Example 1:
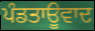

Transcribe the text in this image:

ਪੰਡਤਾਊਵਾਦ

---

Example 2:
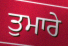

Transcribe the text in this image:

ਤੁਮਾਰੇ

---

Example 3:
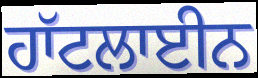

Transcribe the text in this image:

ਹਾੱਟਲਾਈਨ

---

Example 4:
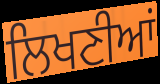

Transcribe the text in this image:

ਲਿਖਣੀਆਂ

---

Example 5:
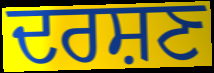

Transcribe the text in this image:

ਦਰਸ਼ਣ